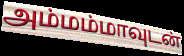
அம்மம்மாவுடன்